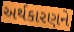
અર્થકારણને